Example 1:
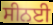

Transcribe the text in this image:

ਸੀਨਈ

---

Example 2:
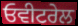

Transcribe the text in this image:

ਓਵੀਟਰੇਲ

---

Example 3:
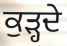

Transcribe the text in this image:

ਕੁੜ੍ਹਦੇ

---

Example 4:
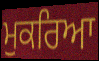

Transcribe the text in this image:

ਮੁਕਰਿਆ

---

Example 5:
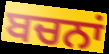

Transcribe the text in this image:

ਬਚਨਾਂ